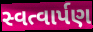
સ્વત્વાર્પણ